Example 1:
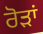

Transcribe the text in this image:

ਰੋੜਾਂ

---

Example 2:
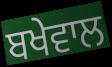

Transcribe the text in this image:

ਬਖੇਵਾਲ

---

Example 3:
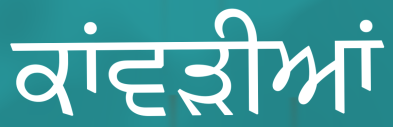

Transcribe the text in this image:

ਕਾਂਵੜੀਆਂ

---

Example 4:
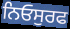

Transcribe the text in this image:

ਨਿਓਸੁਰਫ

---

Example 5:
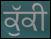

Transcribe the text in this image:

ਕੁੱਕੀ